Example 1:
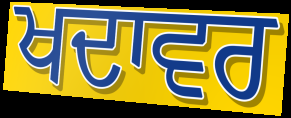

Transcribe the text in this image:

ਖਦਾਵਰ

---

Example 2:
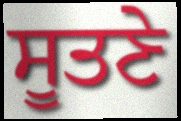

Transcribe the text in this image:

ਸੂਤਣੇ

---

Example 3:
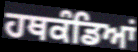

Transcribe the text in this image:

ਹਥਕੰਡਿਆਂ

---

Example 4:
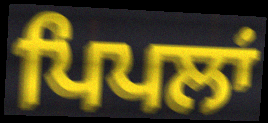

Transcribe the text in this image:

ਪਿਪਲਾਂ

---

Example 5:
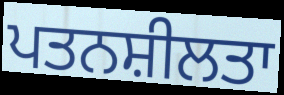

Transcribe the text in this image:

ਪਤਨਸ਼ੀਲਤਾ